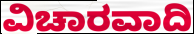
ವಿಚಾರವಾದಿ